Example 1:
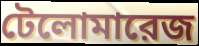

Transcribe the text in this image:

টেলোমারেজ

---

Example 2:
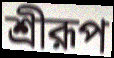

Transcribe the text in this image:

শ্রীরূপ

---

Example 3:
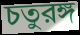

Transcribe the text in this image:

চতুরঙ্গ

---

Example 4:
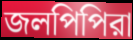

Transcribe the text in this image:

জলপিপিরা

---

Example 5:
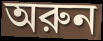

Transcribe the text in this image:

অরুন